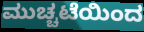
ಮುಚ್ಚಟೆಯಿಂದ